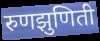
रुणझुणिती